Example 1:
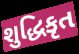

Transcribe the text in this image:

શુદ્ધિકૃત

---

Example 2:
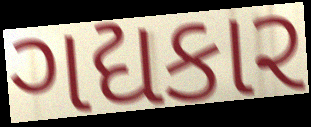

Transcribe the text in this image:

ગદ્યકાર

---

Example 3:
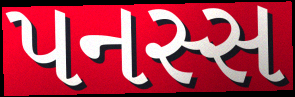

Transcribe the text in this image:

પનસ્સ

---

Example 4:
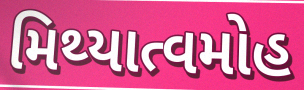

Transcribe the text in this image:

મિથ્યાત્વમોહ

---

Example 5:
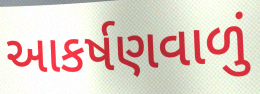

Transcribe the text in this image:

આકર્ષણવાળું